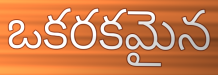
ఒకరకమైన